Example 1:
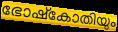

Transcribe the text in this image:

ഭോഷ്കോതിയും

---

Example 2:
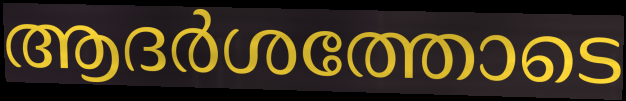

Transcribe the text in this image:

ആദർശത്തോടെ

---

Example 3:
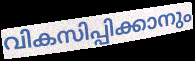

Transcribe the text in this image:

വികസിപ്പിക്കാനും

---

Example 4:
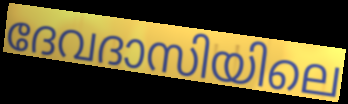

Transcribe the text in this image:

ദേവദാസിയിലെ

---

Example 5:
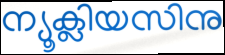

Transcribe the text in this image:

ന്യൂക്ലിയസിനു